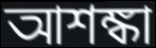
আশঙ্কা